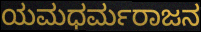
ಯಮಧರ್ಮರಾಜನ